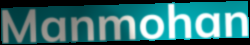
Manmohan